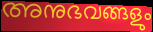
അനുഭവങ്ങളും